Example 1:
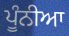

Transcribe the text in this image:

ਪੂੰਨੀਆ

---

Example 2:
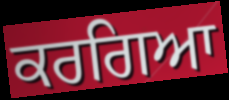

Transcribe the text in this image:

ਕਰਗਿਆ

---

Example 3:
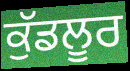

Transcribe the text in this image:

ਕੁੱਡਲੂਰ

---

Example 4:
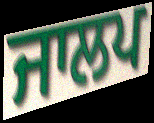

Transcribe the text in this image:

ਜਾਲਪ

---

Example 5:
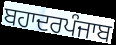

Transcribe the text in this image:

ਬਹਾਦਰਪੰਜਾਬ